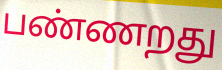
பண்ணறது